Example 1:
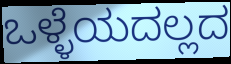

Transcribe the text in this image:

ಒಳ್ಳೆಯದಲ್ಲದ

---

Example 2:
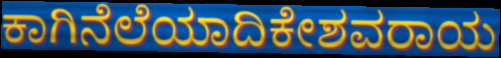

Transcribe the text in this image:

ಕಾಗಿನೆಲೆಯಾದಿಕೇಶವರಾಯ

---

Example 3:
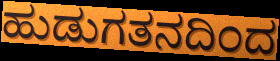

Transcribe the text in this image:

ಹುಡುಗತನದಿಂದ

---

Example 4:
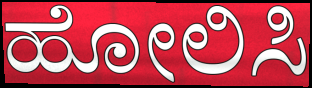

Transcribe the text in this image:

ಹೋಲಿಸಿ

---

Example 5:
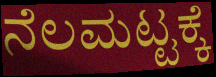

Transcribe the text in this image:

ನೆಲಮಟ್ಟಕ್ಕೆ